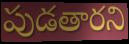
పుడతారని